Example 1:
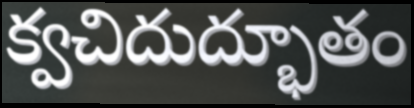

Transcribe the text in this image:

క్వచిదుద్భూతం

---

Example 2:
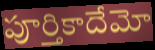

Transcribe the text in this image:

పూర్తికాదేమో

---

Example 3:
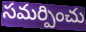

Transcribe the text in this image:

సమర్పించు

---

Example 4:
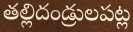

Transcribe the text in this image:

తల్లిదండ్రులపట్ల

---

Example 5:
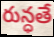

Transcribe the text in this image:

రున్ధతే